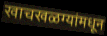
खाचखळग्यांमधून